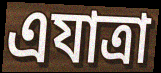
এযাত্রা